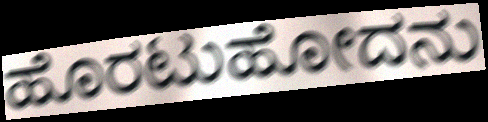
ಹೊರಟುಹೋದನು